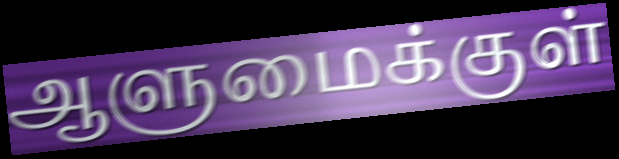
ஆளுமைக்குள்